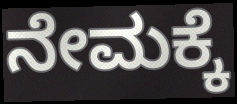
ನೇಮಕ್ಕೆ